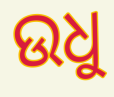
ଉଧୁ